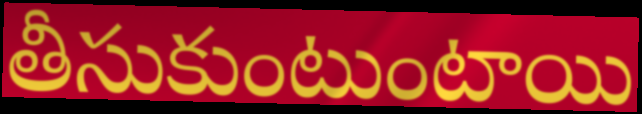
తీసుకుంటుంటాయి